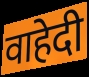
वाहेदी